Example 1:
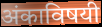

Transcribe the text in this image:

अंकाविषयी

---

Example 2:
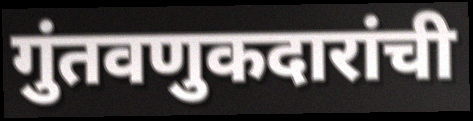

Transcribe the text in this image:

गुंतवणुकदारांची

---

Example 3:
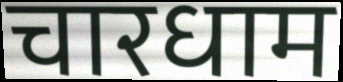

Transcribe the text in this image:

चारधाम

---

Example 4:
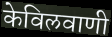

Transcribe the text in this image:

केविलवाणी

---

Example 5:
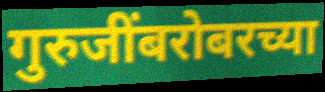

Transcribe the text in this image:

गुरुजींबरोबरच्या